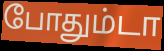
போதும்டா